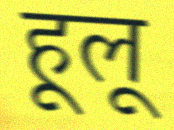
हूलू